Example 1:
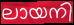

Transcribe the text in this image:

ലായനി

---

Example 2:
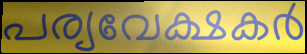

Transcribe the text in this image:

പര്യവേക്ഷകർ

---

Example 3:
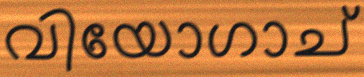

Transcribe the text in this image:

വിയോഗാച്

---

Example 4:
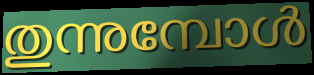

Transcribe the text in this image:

തുന്നുമ്പോൾ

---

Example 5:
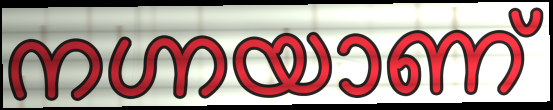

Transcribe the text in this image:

നഗ്നയാണ്